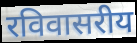
रविवासरीय